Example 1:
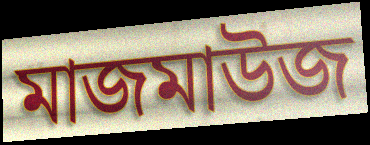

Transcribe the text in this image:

মাজমাউজ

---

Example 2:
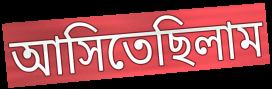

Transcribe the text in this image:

আসিতেছিলাম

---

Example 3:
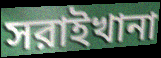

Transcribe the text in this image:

সরাইখানা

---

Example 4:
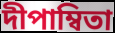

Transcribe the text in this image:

দীপাম্বিতা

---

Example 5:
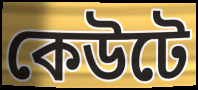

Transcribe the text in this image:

কেউটে